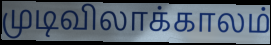
முடிவிலாக்காலம்